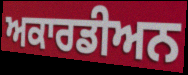
ਅਕਾਰਡੀਅਨ